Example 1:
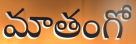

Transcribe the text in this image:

మాతంగో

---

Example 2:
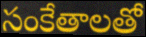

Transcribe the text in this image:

సంకేతాలతో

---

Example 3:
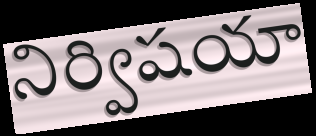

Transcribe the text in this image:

నిర్విషయా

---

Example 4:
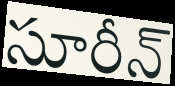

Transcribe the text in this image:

సూరీన్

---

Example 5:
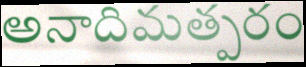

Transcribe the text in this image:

అనాదిమత్పరం